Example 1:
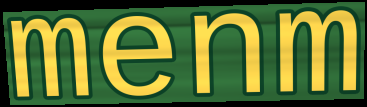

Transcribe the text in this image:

menm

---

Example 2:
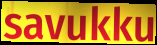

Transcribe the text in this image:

savukku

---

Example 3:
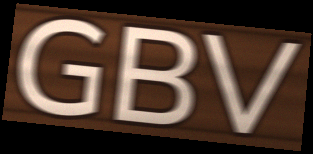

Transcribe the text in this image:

GBV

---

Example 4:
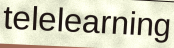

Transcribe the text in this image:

telelearning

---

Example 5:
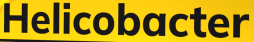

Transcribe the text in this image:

Helicobacter